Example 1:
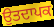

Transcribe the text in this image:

ਉਤਦਾਪਕ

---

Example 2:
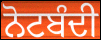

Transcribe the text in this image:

ਨੋਟਬੰਦੀ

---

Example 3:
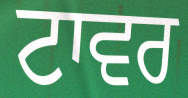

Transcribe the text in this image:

ਟਾਵਰ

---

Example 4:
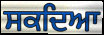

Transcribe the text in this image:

ਸਕਦਿਆ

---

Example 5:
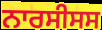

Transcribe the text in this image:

ਨਾਰਸੀਸਸ